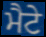
ਮੈਟੇ